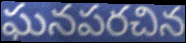
ఘనపరచిన